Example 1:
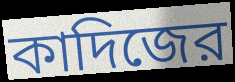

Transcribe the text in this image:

কাদিজের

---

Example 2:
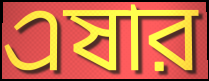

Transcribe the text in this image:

এষার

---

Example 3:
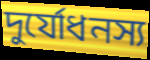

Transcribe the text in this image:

দুর্যোধনস্য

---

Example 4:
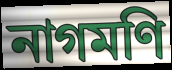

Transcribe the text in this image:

নাগমণি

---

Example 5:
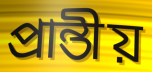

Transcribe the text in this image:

প্রান্তীয়